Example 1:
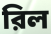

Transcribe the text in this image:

রিল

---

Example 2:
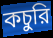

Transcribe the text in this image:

কচুরি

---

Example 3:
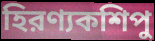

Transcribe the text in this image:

হিরণ্যকশিপু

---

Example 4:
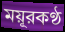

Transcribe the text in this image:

ময়ূরকণ্ঠ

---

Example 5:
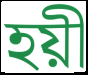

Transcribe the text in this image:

হয়ী